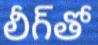
లీగ్‌తో